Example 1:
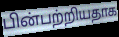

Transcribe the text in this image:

பின்பற்றியதாக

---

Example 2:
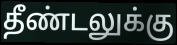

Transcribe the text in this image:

தீண்டலுக்கு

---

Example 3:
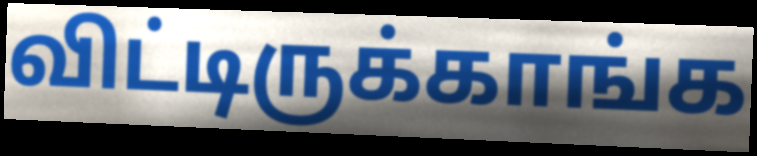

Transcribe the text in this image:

விட்டிருக்காங்க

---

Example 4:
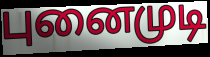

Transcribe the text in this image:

புனைமுடி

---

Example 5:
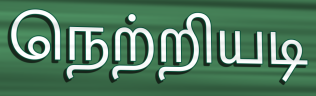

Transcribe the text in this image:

நெற்றியடி